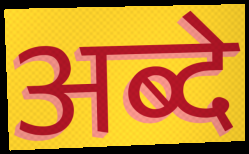
अब्दे